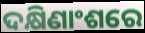
ଦକ୍ଷିଣାଂଶରେ